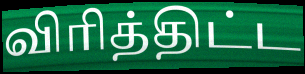
விரித்திட்ட